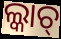
ଲ୍କାଚ୍